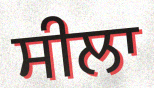
ਸੀਲਾ